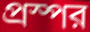
প্রস্পর